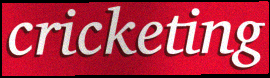
cricketing